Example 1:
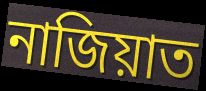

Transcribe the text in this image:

নাজিয়াত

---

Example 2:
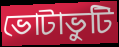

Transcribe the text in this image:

ভোটাভুটি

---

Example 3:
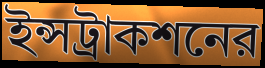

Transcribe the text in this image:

ইন্সট্রাকশনের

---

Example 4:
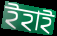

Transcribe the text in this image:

ইহাই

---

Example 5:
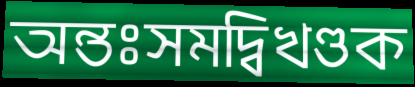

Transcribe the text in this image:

অন্তঃসমদ্বিখণ্ডক